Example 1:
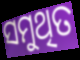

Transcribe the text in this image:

ସମୁଥିତ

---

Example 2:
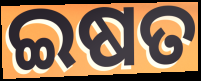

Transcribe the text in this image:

ଇଷତ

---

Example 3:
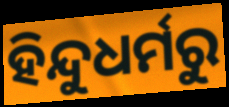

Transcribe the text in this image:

ହିନ୍ଦୁଧର୍ମରୁ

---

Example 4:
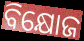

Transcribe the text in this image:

ବିକ୍ଷୋଜ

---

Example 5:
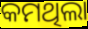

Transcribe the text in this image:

କମଥିଲା